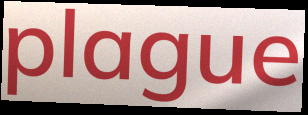
plague